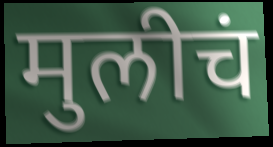
मुलीचं